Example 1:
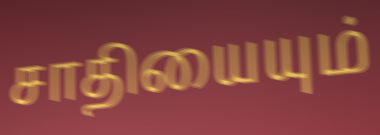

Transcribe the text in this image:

சாதியையும்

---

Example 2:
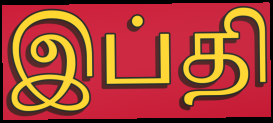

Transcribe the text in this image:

இப்தி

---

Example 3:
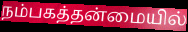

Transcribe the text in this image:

நம்பகத்தன்மையில்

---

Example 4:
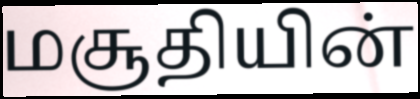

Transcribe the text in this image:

மசூதியின்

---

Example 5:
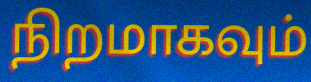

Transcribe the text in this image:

நிறமாகவும்